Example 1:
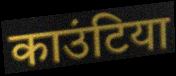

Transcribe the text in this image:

काउंटिया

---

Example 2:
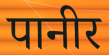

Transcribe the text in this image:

पानीर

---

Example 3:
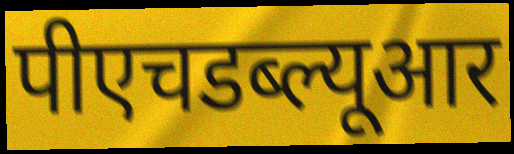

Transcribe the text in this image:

पीएचडब्ल्यूआर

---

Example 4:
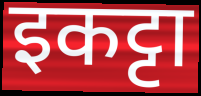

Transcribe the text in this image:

इकट्टा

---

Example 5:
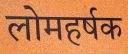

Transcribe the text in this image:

लोमहर्षक